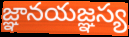
జ్ఞానయజ్ఞస్య